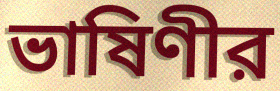
ভাষিণীর